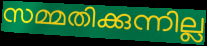
സമ്മതിക്കുന്നില്ല